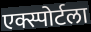
एक्स्पोर्टला